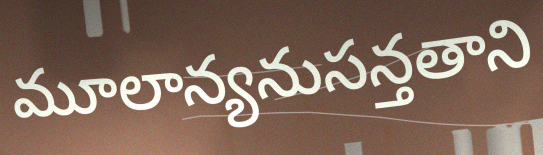
మూలాన్యనుసన్తతాని